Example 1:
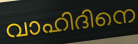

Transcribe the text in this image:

വാഹിദിനെ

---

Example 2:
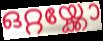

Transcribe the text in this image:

ഒറ്റയ്ക്കോ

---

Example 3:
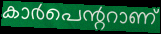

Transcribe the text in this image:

കാർപെന്ററാണ്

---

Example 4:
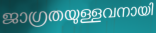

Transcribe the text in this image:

ജാഗ്രതയുള്ളവനായി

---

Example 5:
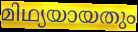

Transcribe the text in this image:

മിഥ്യയായതും